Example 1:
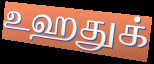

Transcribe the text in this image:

உஹதுக்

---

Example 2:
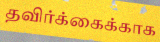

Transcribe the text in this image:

தவிர்க்கைக்காக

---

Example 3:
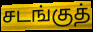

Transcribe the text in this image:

சடங்குத்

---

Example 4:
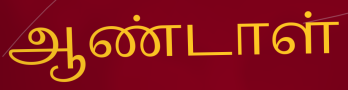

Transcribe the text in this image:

ஆண்டாள்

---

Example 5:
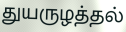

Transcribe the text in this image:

துயருழத்தல்